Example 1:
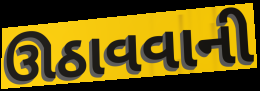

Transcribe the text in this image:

ઊઠાવવાની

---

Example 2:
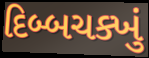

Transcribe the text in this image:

દિબ્બચક્ખું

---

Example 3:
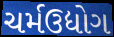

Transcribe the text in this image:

ચર્મઉદ્યોગ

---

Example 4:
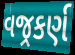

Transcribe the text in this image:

વજ્રકર્ણ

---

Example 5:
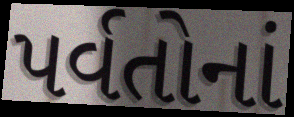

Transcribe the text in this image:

પર્વતોનાં